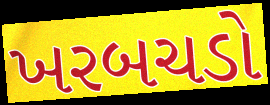
ખરબચડો